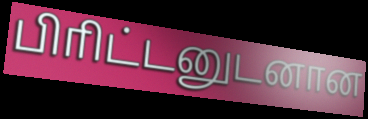
பிரிட்டனுடனான